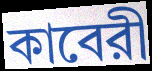
কাবেরী